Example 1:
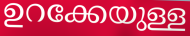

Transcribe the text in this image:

ഉറക്കേയുള്ള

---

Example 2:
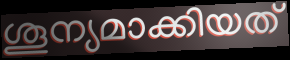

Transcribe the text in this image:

ശൂന്യമാക്കിയത്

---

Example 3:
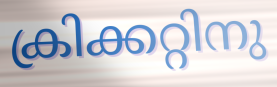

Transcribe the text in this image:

ക്രിക്കറ്റിനു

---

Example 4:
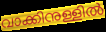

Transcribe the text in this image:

വാക്കിനുള്ളിൽ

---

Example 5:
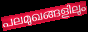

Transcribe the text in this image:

പലമുഖങ്ങളിലും